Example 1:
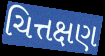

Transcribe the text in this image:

ચિત્તક્ષણ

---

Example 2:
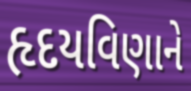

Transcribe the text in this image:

હૃદયવિણાને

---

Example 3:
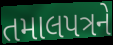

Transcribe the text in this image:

તમાલપત્રને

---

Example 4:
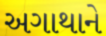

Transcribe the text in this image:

અગાથાને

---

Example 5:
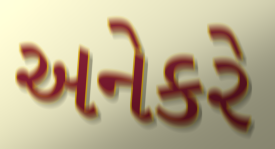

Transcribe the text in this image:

અનેકરે